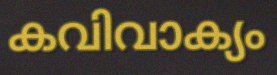
കവിവാക്യം